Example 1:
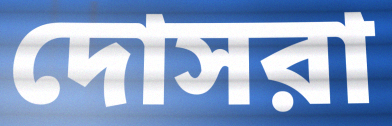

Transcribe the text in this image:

দোসরা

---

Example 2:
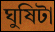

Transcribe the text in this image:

ঘুষিটা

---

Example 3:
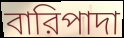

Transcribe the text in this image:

বারিপাদা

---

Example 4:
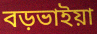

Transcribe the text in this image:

বড়ভাইয়া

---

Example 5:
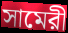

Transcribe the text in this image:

সামেরী